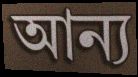
আন্য